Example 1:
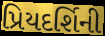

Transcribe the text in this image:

પ્રિયદર્શિની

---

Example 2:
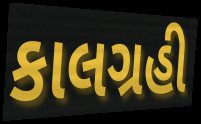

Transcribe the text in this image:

કાલગ્રહી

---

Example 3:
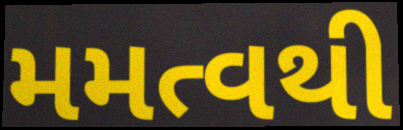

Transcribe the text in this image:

મમત્વથી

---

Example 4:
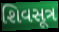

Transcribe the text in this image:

શિવસૂત્ર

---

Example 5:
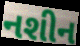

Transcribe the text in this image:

નશીન